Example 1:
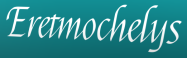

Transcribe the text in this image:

Eretmochelys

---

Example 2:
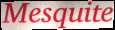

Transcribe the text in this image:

Mesquite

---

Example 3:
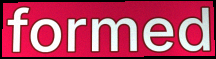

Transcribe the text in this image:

formed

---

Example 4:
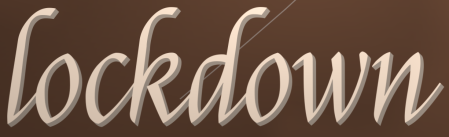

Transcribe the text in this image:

lockdown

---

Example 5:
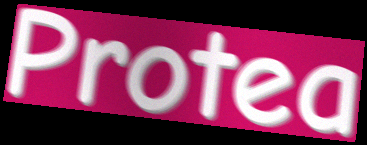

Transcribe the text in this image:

Protea